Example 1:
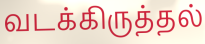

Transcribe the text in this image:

வடக்கிருத்தல்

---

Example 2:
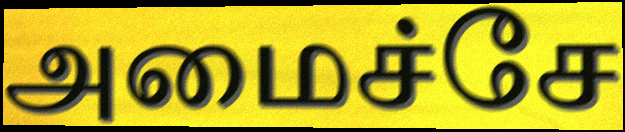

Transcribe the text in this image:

அமைச்சே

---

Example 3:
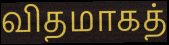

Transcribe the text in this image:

விதமாகத்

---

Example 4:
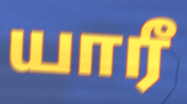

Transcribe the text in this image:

யாரீ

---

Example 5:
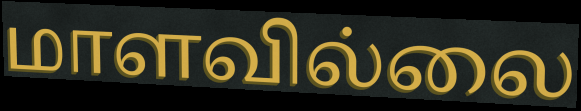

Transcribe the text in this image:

மாளவில்லை